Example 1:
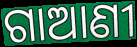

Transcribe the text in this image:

ଗାଆଣୀ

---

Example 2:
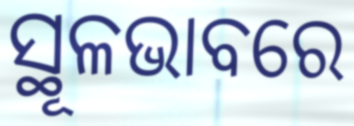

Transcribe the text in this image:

ସ୍ଥୂଳଭାବରେ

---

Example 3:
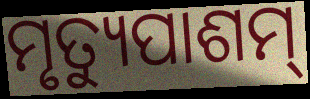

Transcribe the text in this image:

ମୃତ୍ୟୁପାଶମ୍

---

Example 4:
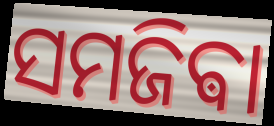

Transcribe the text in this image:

ସମଜିଵା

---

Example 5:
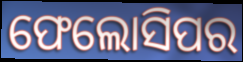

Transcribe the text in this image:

ଫେଲୋସିପର